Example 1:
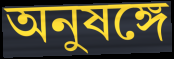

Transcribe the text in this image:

অনুষঙ্গে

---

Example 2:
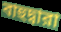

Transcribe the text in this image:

বাহুদ্বারা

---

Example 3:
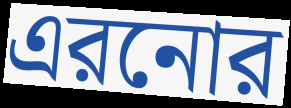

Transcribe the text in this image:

এরনোর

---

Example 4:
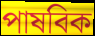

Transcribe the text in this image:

পাষবিক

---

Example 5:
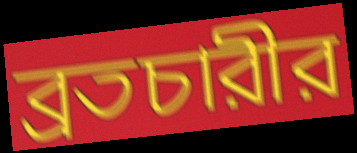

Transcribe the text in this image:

ব্রতচারীর